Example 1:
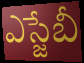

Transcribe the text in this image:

ఎస్జేబీ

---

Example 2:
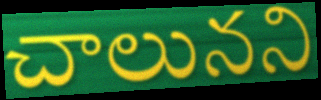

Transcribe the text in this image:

చాలునని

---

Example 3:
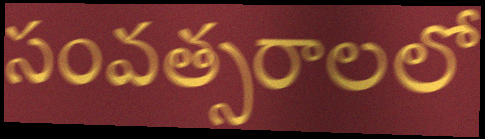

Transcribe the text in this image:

సంవత్సరాలలో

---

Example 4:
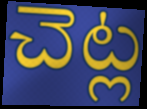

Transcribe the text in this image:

చెట్ల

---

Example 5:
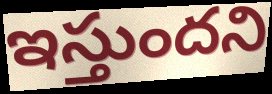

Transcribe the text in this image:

ఇస్తుందని